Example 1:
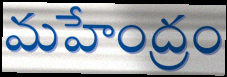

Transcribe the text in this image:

మహేంద్రం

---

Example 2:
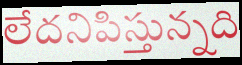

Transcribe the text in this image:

లేదనిపిస్తున్నది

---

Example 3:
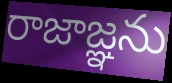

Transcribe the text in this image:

రాజాజ్ఞను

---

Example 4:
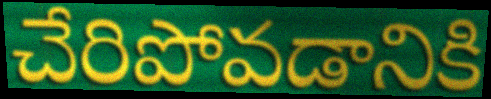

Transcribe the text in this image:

చేరిపోవడానికి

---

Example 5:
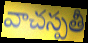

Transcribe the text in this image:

వాచస్పతీ